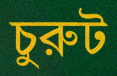
চুরুট